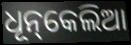
ଧୂନ୍‌କେଲିଆ